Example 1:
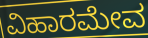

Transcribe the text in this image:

ವಿಹಾರಮೇವ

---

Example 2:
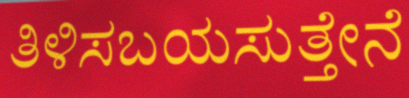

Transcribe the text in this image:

ತಿಳಿಸಬಯಸುತ್ತೇನೆ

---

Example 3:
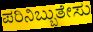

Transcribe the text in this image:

ಪರಿನಿಬ್ಬುತೇಸು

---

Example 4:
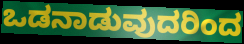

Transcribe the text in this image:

ಒಡನಾಡುವುದರಿಂದ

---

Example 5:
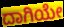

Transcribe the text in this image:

ದಾಗಿಯೇ